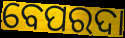
ବେପରଦା